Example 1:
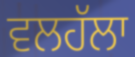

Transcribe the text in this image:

ਵਲਹੱਲਾ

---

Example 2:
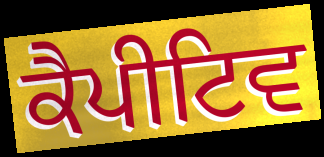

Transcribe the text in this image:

ਕੈਪੀਟਿਵ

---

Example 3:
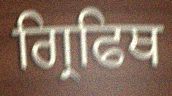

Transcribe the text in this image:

ਗ੍ਰਿਫਿਥ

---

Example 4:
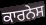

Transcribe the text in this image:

ਕਾਰਨੇਸ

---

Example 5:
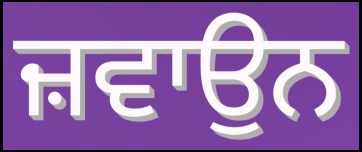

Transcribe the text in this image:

ਜ਼ਵਾਉਨ